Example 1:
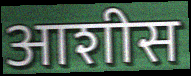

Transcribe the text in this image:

आशीस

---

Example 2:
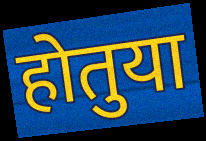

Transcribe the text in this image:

होतुया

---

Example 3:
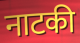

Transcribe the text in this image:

नाटकी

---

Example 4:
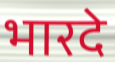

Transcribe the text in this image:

भारदे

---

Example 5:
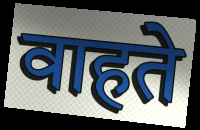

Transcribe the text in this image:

वाहते